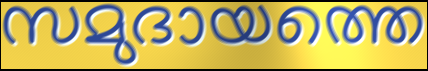
സമുദായത്തെ